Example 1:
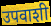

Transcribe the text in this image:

उपवाशी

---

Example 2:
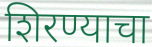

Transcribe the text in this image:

शिरण्याचा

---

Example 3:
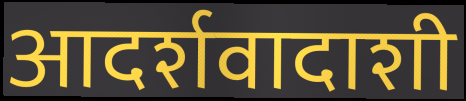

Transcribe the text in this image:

आदर्शवादाशी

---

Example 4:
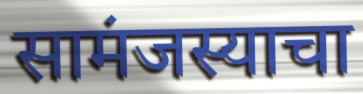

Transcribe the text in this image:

सामंजस्याचा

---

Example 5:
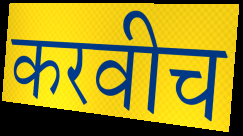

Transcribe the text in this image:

करवीच